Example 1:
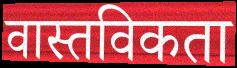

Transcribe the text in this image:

वास्तविकता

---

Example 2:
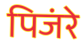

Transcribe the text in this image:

पिजंरे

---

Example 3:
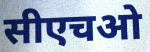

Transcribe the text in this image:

सीएचओ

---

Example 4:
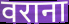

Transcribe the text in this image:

वराना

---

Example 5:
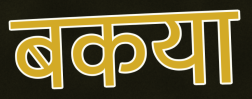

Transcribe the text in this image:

बकया